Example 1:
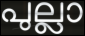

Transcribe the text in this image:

പുല്ലാ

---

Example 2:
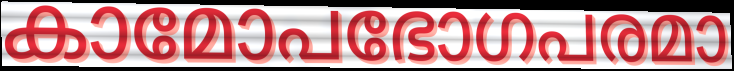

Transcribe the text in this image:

കാമോപഭോഗപരമാ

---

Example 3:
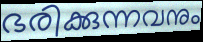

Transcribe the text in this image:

ഭരിക്കുന്നവനും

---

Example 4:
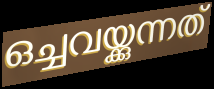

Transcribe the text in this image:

ഒച്ചവയ്ക്കുന്നത്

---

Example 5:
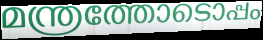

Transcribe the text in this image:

മന്ത്രത്തോടൊപ്പം